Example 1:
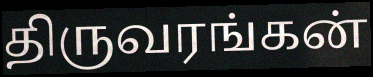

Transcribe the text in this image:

திருவரங்கன்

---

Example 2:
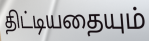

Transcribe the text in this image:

திட்டியதையும்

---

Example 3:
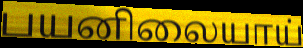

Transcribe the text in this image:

பயனிலையாய்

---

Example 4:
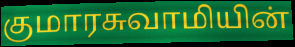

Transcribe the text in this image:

குமாரசுவாமியின்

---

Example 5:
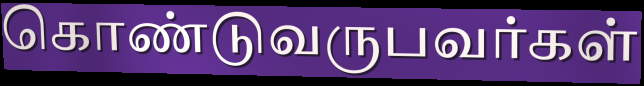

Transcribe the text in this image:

கொண்டுவருபவர்கள்